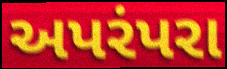
અપરંપરા